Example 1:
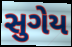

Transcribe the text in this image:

સુગેય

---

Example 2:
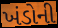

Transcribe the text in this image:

ખંડોની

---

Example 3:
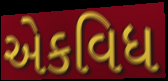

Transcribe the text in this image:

એકવિધ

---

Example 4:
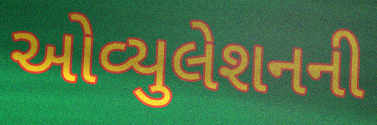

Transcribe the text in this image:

ઓવ્યુલેશનની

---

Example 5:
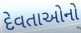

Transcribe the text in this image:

દેવતાઓનો